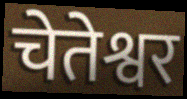
चेतेश्वर